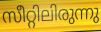
സീറ്റിലിരുന്നു